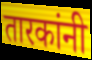
तारकांनी